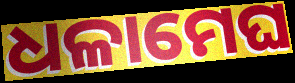
ଧଳାମେଘ